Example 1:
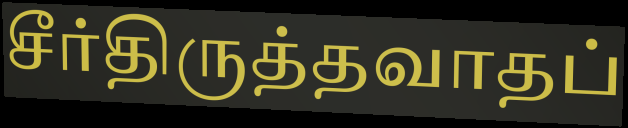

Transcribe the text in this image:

சீர்திருத்தவாதப்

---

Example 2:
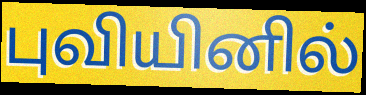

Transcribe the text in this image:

புவியினில்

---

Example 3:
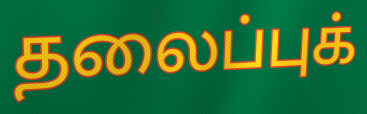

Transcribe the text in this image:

தலைப்புக்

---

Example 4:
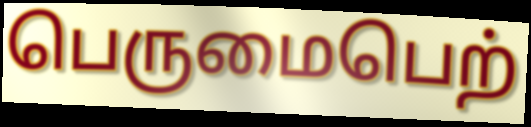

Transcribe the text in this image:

பெருமைபெற்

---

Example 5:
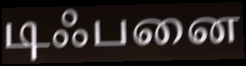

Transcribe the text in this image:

டிஃபனை